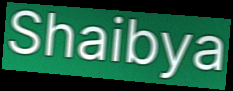
Shaibya